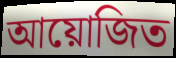
আয়োজিত